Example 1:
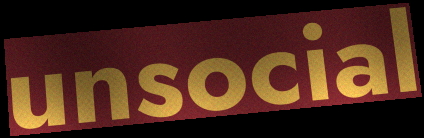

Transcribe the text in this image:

unsocial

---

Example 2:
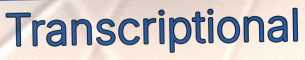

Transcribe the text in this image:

Transcriptional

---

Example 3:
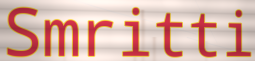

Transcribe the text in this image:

Smritti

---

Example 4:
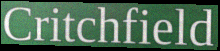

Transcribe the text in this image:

Critchfield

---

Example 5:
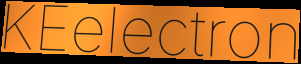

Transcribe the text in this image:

KEelectron